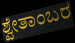
ಶ್ವೇತಾಂಬರ